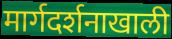
मार्गदर्शनाखाली